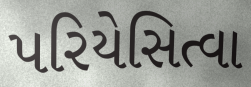
પરિયેસિત્વા